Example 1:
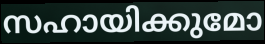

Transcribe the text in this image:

സഹായിക്കുമോ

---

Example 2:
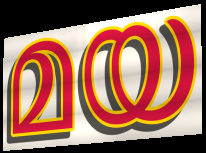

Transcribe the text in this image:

മയ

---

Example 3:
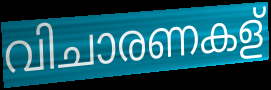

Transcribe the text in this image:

വിചാരണകള്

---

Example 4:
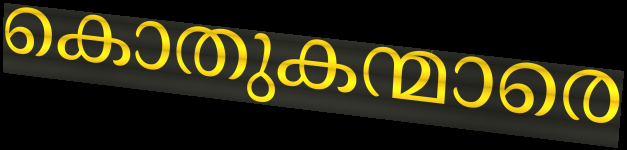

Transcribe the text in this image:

കൊതുകന്മാരെ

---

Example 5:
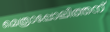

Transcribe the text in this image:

മെത്രാപ്പോലീത്തന്